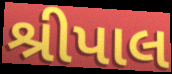
શ્રીપાલ